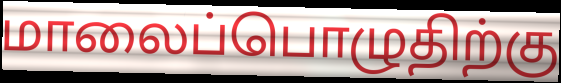
மாலைப்பொழுதிற்கு